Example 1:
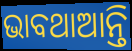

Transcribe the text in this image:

ଭାବଥାଆନ୍ତି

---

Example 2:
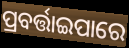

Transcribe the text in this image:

ପ୍ରବର୍ତ୍ତାଇପାରେ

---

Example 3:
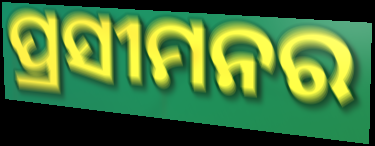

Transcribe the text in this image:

ପ୍ରସୀମନର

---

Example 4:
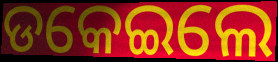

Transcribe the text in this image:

ଡକେଇଲେ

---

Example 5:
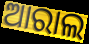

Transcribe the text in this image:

ଆରାଲ